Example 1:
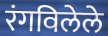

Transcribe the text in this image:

रंगविलेले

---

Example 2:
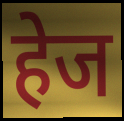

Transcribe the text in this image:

हेज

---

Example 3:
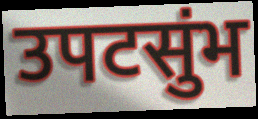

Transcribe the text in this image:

उपटसुंभ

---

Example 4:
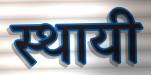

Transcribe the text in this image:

स्‍थायी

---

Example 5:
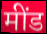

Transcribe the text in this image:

मींड